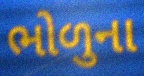
ભોળુના